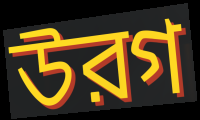
উরগ